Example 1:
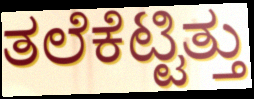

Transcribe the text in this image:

ತಲೆಕೆಟ್ಟಿತ್ತು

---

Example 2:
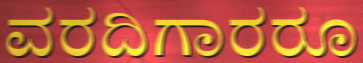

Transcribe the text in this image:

ವರದಿಗಾರರೂ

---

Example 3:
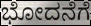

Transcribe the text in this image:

ಭೋದನೆಗೆ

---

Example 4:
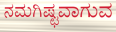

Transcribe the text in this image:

ನಮಗಿಷ್ಟವಾಗುವ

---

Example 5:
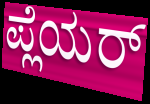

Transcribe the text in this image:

ಪ್ಲೆಯರ್